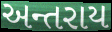
અન્તરાય